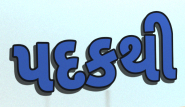
પદકથી